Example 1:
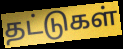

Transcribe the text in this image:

தட்டுகள்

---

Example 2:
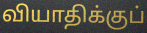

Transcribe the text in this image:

வியாதிக்குப்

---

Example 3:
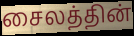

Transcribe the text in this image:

சைலத்தின்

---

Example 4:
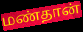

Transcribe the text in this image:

மண்தான்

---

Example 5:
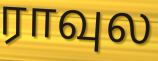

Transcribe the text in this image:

ராவுல